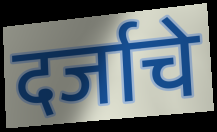
दर्जाचे